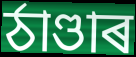
ঠাণ্ডাৰ